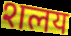
शलय